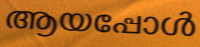
ആയപ്പോൾ